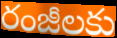
రంజీలకు